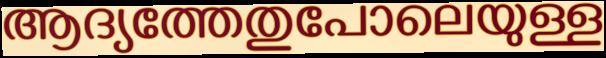
ആദ്യത്തേതുപോലെയുള്ള